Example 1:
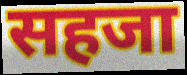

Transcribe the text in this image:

सहजा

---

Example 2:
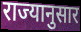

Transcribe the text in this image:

राज्यानुसार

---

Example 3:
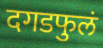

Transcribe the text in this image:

दगडफुलं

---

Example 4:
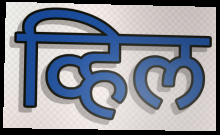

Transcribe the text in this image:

व्हिल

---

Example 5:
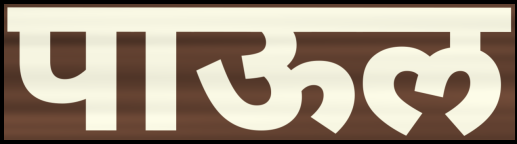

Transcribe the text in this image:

पाऊल